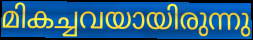
മികച്ചവയായിരുന്നു